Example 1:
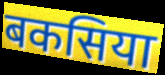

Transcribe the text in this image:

बकसिया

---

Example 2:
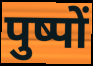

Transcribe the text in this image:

पुष्पों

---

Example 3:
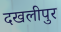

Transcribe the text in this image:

दखलीपुर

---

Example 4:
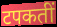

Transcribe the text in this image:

टपकतीं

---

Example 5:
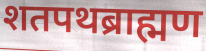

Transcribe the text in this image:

शतपथब्राह्मण